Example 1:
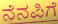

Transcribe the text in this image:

ನೆನಪಿಗೆ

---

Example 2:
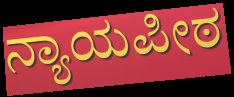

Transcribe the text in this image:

ನ್ಯಾಯಪೀಠ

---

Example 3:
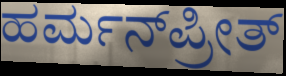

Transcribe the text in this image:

ಹರ್ಮನ್‌ಪ್ರೀತ್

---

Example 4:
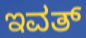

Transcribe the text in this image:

ಇವತ್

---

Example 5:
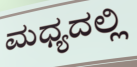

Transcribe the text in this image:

ಮಧ್ಯದಲ್ಲಿ